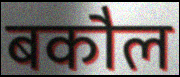
बकौल